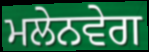
ਮਲੇਨਵੇਗ